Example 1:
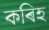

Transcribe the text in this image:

কৰিহ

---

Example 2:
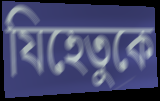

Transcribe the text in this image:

যিহেতুকে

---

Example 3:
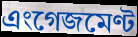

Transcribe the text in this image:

এংগেজমেণ্ট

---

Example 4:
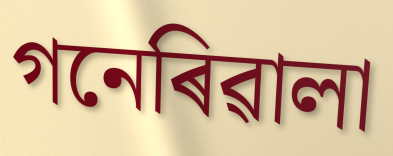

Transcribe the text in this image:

গনেৰিৱালা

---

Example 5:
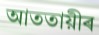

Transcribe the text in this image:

আততায়ীৰ